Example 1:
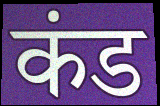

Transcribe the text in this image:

कंड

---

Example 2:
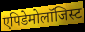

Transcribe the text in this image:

एपिडेमोलॉजिस्ट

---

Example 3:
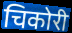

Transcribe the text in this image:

चिकोरी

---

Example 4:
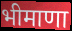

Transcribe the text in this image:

भीमाणा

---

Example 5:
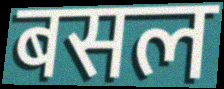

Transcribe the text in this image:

बसल